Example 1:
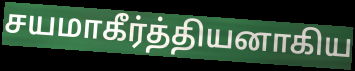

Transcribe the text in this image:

சயமாகீர்த்தியனாகிய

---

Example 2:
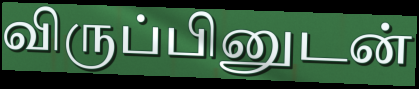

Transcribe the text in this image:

விருப்பினுடன்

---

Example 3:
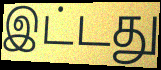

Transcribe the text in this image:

இட்டது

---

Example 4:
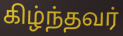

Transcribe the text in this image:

கிழ்ந்தவர்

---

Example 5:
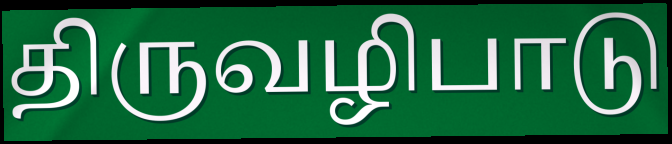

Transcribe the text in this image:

திருவழிபாடு